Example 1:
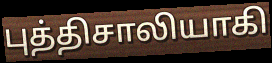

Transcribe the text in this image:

புத்திசாலியாகி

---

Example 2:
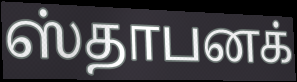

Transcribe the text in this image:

ஸ்தாபனக்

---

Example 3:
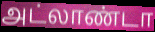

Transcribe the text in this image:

அட்லாண்டா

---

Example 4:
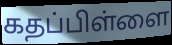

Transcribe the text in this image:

கதப்பிள்ளை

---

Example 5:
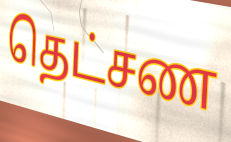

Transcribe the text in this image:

தெட்சண